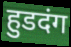
हुडदंग